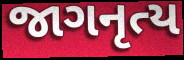
જાગનૃત્ય